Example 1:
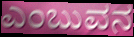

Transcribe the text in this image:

ಎಂಬುವನ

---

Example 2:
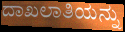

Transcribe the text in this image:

ದಾಖಲಾತಿಯನ್ನು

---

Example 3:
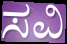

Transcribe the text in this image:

ಸವಿ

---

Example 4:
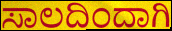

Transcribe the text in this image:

ಸಾಲದಿಂದಾಗಿ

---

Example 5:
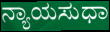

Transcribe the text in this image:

ನ್ಯಾಯಸುಧಾ